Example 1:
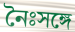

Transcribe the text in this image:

নৈঃসঙ্গে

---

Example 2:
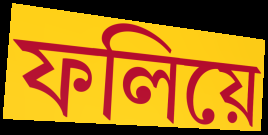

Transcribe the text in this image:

ফলিয়ে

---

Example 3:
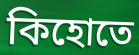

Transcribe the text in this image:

কিহোতে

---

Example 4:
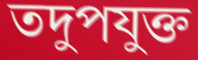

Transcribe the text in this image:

তদুপযুক্ত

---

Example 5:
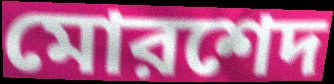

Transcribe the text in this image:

মোরশেদ